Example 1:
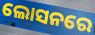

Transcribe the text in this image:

ଲୋସନରେ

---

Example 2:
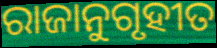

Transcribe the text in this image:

ରାଜାନୁଗୃହୀତ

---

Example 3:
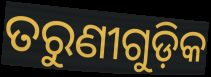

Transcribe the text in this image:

ତରୁଣୀଗୁଡ଼ିକ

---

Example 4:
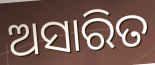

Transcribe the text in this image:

ଅସାରିତ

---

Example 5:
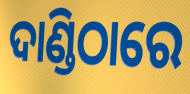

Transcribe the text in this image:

ଦାଣ୍ଡିଠାରେ